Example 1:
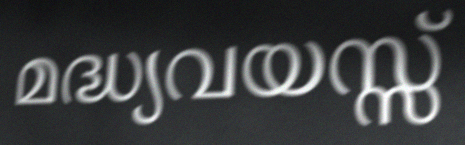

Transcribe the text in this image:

മദ്ധ്യവയസ്സ്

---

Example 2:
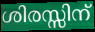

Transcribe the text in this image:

ശിരസ്സിന്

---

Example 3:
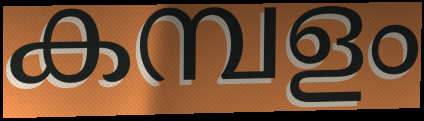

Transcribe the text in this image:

കമ്പളം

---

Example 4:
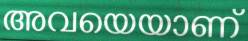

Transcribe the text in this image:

അവയെയാണ്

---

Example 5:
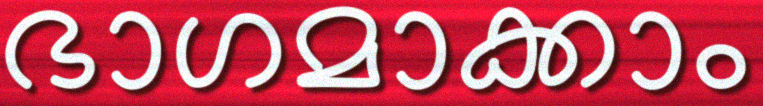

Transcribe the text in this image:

ഭാഗമാക്കാം